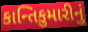
કાન્તિકુમારીનું